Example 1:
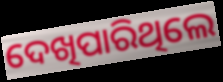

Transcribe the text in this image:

ଦେଖିପାରିଥିଲେ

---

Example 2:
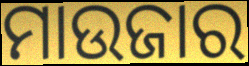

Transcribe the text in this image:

ମାଉଜାର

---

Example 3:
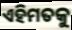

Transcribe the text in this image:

ଏହିମତକୁ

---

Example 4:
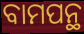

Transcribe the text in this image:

ବାମପନ୍ଥ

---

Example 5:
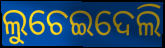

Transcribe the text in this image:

ଲୁଚେଇଦେଲି